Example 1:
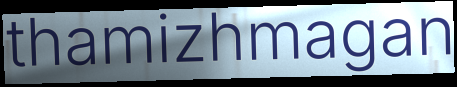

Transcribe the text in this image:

thamizhmagan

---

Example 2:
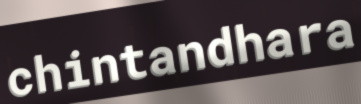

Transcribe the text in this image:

chintandhara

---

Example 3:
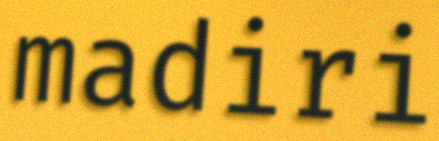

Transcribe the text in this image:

madiri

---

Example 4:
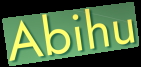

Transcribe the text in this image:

Abihu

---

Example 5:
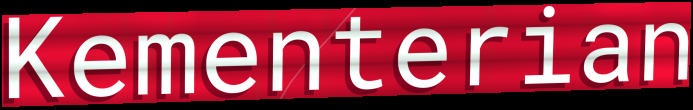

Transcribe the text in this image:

Kementerian